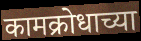
कामक्रोधाच्या